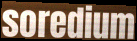
soredium